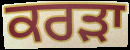
ਕਰੜਾ